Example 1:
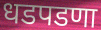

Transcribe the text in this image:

धडपडणा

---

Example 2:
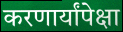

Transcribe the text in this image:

करणार्यांपेक्षा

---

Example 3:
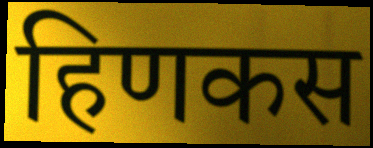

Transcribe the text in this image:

हिणकस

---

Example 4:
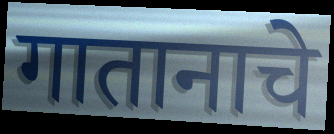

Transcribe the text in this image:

गातानाचे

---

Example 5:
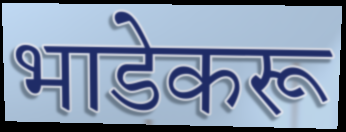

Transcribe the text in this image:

भाडेकरू